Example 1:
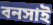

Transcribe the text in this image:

বনসাই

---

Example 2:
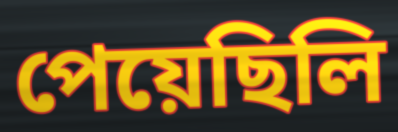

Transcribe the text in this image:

পেয়েছিলি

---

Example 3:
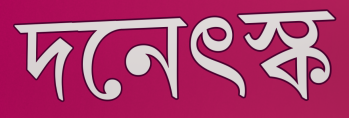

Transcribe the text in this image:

দনেৎস্ক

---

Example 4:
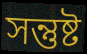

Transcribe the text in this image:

সন্তুষ্ট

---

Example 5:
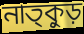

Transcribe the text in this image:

নাত্কুড়